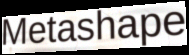
Metashape